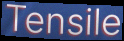
Tensile